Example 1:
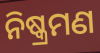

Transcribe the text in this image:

ନିଷ୍କ୍ରମଣ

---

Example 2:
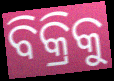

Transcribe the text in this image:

ବିକ୍ରିକୁ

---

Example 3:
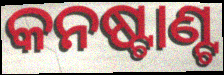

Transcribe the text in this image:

କନଷ୍ଟାଣ୍ଟ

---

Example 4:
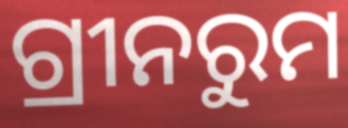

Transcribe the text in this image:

ଗ୍ରୀନରୁମ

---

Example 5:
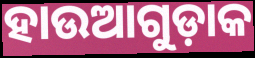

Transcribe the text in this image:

ହାଉଆଗୁଡ଼ାକ